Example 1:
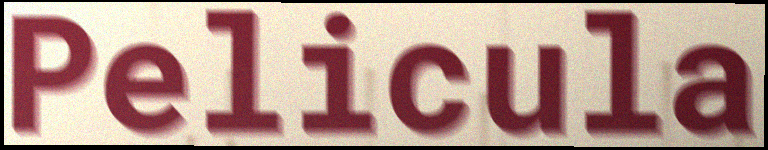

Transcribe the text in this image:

Pelicula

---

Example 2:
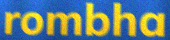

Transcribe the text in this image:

rombha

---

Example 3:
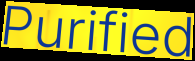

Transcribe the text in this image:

Purified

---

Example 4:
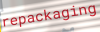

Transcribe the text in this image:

repackaging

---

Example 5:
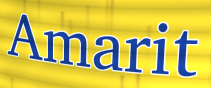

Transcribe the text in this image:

Amarit